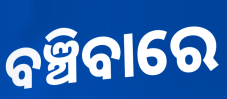
ବଞ୍ଚିବାରେ